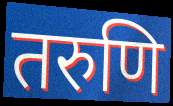
तरुणि